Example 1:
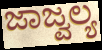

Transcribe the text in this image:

ಜಾಜ್ವಲ್ಯ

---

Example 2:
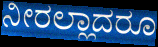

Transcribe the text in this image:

ನೀರಲ್ಲಾದರೂ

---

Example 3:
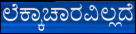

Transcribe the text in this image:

ಲೆಕ್ಕಾಚಾರವಿಲ್ಲದೆ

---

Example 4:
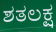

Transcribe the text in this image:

ಶತಲಕ್ಷ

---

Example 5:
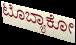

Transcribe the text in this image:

ಟೊಬ್ಯಾಕೋ